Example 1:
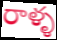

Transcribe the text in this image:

రాళ్ళ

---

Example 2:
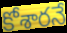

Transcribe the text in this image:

కోశారనే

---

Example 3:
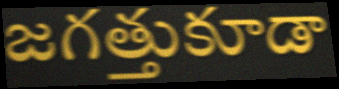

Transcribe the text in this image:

జగత్తుకూడా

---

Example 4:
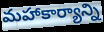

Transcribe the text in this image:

మహాకార్యాన్ని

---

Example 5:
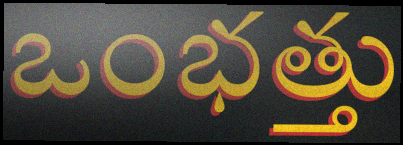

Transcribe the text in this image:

ఒంభత్తు